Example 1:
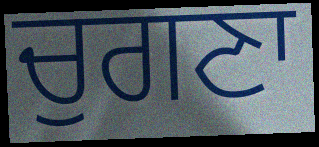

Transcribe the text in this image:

ਚੁਗਣਾ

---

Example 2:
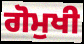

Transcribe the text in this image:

ਗੋਮੁਖੀ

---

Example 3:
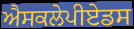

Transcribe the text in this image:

ਐਸਕਲੇਪੀਏਡਸ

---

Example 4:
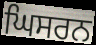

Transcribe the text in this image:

ਘਿਸਰਨ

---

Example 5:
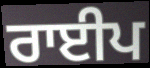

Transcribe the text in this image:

ਰਾਈਪ